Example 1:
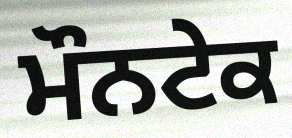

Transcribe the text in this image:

ਮੌਨਟੇਕ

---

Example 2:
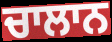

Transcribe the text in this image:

ਚਾਲਾਨ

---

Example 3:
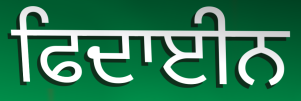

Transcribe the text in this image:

ਫਿਦਾਈਨ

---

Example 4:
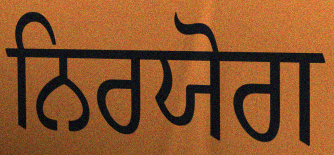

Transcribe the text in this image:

ਨਿਰਯੋਗ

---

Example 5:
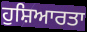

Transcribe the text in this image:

ਹੁਸ਼ਿਆਰਤਾ